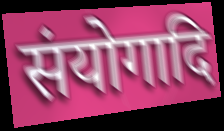
संयोगादि